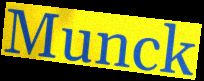
Munck